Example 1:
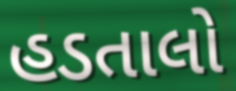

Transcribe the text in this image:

હડતાલો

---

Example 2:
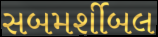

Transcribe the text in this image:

સબમર્શીબલ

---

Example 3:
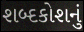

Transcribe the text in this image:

શબ્દકોશનું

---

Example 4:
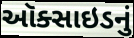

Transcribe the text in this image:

ઑક્સાઇડનું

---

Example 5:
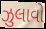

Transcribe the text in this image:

ઝુલાવો